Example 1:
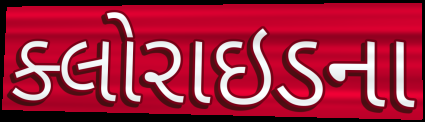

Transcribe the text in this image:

ક્લોરાઇડના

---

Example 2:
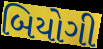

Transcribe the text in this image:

બિયોગી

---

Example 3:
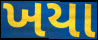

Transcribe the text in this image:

ખયા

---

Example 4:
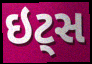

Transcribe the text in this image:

ઇટ્સ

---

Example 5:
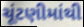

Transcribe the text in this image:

ચૂંટણીમાંથી